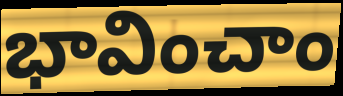
భావించాం